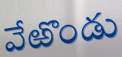
వేఱొండు